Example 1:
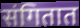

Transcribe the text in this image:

संगितात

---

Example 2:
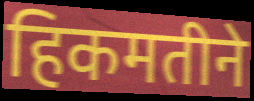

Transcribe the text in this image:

हिकमतीने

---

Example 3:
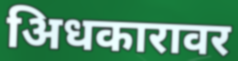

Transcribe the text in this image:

अिधकारावर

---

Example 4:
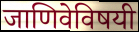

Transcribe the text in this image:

जाणिवेविषयी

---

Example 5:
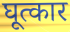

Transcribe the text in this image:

घूत्कार